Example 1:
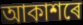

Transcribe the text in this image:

আকাশৰে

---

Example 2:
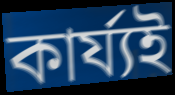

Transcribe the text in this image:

কাৰ্য্যই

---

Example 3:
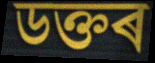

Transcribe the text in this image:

ডক্তৰ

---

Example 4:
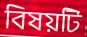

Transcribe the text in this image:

বিষয়টি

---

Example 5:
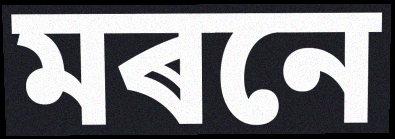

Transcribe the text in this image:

মৰনে